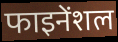
फाइनेंशल